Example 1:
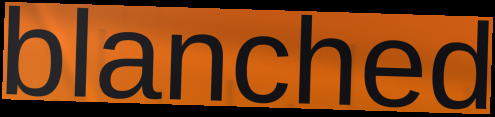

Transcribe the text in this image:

blanched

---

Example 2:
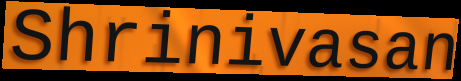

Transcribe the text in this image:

Shrinivasan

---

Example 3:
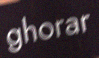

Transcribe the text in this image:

ghorar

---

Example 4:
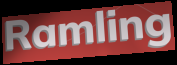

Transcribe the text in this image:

Ramling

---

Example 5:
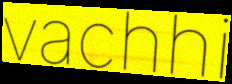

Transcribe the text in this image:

vachhi